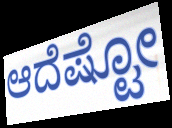
ಆದೆಷ್ಟೋ